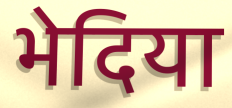
भेदिया